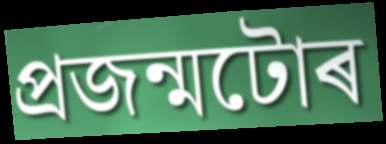
প্ৰজন্মটোৰ